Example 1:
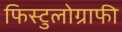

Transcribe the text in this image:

फिस्टुलोग्राफी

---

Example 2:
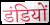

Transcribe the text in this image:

डंडियों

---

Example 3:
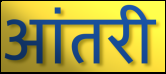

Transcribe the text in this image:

आंतरी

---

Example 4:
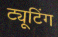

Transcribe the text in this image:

ट्यूटिंग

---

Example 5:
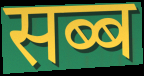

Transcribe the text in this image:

सब्ब